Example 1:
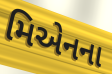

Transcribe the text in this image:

મિએનના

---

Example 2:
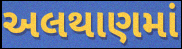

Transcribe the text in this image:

અલથાણમાં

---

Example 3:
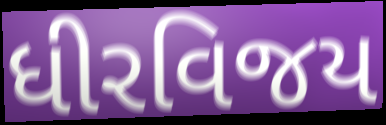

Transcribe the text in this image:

ધીરવિજય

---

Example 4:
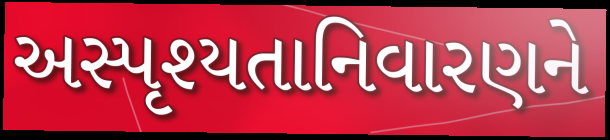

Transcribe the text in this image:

અસ્પૃશ્યતાનિવારણને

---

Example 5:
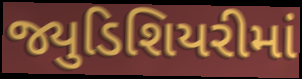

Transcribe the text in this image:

જ્યુડિશિયરીમાં